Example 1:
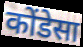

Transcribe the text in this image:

कोंडेसा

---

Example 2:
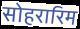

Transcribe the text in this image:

सोहरारिम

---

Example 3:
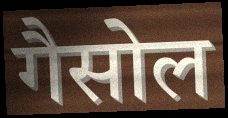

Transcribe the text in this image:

गैसोल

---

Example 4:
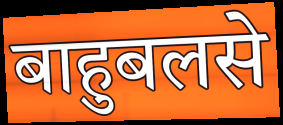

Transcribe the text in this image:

बाहुबलसे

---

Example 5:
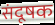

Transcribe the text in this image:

संदूषक